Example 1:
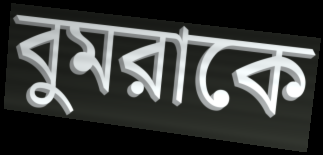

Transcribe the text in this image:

বুমরাকে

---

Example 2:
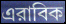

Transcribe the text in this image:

এরাবিক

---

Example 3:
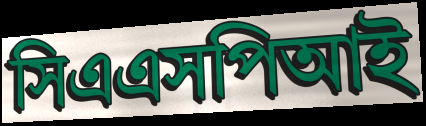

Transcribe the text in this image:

সিএএসপিআই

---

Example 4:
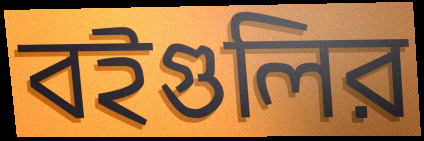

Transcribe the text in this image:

বইগুলির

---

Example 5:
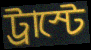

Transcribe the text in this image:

ট্রাস্টে